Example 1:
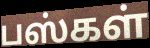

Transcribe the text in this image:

பஸ்கள்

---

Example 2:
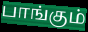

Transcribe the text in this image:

பாங்கும்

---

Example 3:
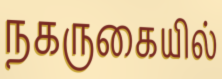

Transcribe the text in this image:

நகருகையில்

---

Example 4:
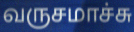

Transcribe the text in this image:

வருசமாச்சு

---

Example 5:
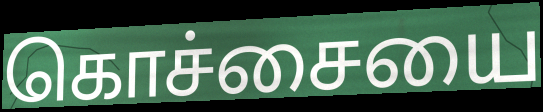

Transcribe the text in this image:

கொச்சையை